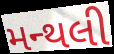
મન્થલી